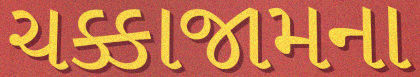
ચક્કાજામના